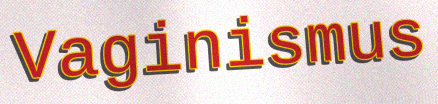
Vaginismus